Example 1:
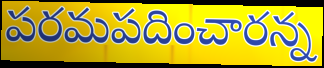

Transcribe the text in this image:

పరమపదించారన్న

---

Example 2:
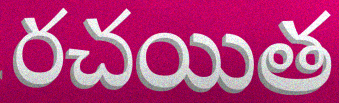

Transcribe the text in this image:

రచయిత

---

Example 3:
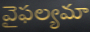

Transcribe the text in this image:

వైఫల్యమా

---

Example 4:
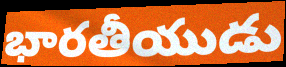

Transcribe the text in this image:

భారతీయుడు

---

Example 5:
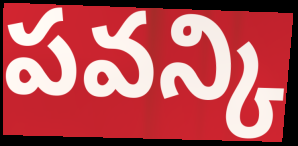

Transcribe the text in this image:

పవన్కి